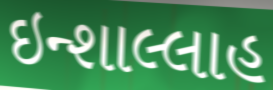
ઇન્શાલ્લાહ